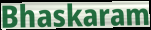
Bhaskaram